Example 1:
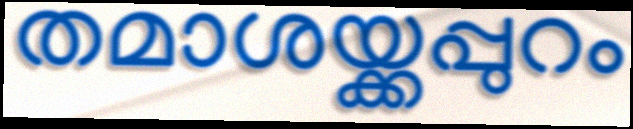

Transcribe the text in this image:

തമാശയ്ക്കപ്പുറം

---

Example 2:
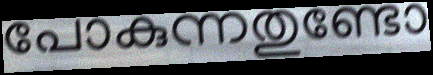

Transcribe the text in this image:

പോകുന്നതുണ്ടോ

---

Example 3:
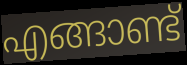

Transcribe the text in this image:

എങ്ങാണ്ട്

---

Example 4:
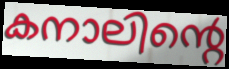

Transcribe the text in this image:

കനാലിന്റെ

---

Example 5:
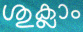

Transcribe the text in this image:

ശുക്ലാം